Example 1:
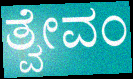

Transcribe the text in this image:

ತ್ವೇವಂ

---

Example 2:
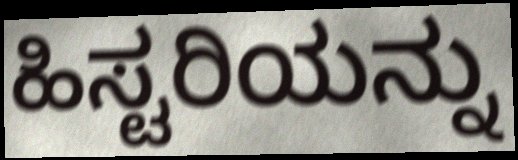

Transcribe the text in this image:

ಹಿಸ್ಟರಿಯನ್ನು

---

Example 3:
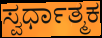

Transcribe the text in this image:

ಸ್ವರ್ಧಾತ್ಮಕ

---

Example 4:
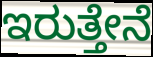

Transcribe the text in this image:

ಇರುತ್ತೇನೆ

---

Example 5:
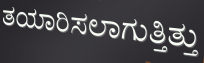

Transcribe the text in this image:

ತಯಾರಿಸಲಾಗುತ್ತಿತ್ತು